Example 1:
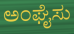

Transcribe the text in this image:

ಅಂಘೈಸು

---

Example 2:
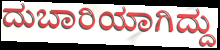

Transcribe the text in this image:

ದುಬಾರಿಯಾಗಿದ್ದು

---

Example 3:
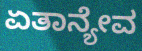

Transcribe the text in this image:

ಏತಾನ್ಯೇವ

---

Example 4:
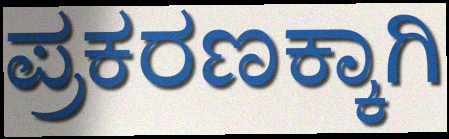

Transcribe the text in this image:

ಪ್ರಕರಣಕ್ಕಾಗಿ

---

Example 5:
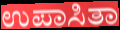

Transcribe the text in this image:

ಉಪಾಸಿತಾ